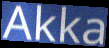
Akka